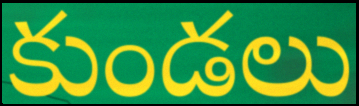
కుండలు